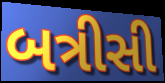
બત્રીસી